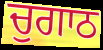
ਚੁਗਾਠ